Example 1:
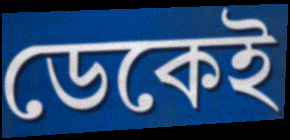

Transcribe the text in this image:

ডেকেই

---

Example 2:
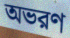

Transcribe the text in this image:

অভরণ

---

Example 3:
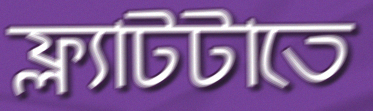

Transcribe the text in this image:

ফ্ল্যাটটাতে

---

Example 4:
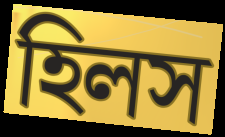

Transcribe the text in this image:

হিলস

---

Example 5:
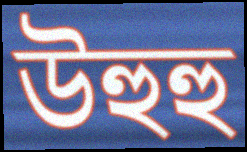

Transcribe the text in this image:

উহুহু